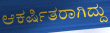
ಆಕರ್ಷಿತರಾಗಿದ್ದು